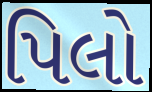
પિલો